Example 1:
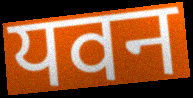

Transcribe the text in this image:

यवन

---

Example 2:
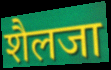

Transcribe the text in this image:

शैलजा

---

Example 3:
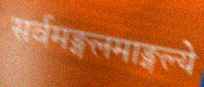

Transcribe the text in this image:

सर्वमङ्गलमाङ्गल्ये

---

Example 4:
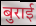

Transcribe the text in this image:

बुराई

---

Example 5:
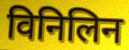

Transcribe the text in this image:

विनिलिन